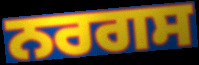
ਨਰਗਸ